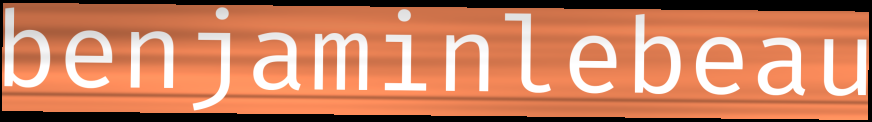
benjaminlebeau